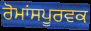
ਰੋਮਾਂਸਪੂਰਵਕ